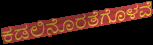
ಕಡಲಿನೊರತೆಗೊಳವೆ